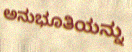
ಅನುಭೂತಿಯನ್ನು